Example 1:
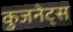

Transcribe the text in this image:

कुजनेट्स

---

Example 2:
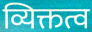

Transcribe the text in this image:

व्यिक्तत्व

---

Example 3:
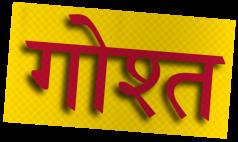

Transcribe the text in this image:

गोश्‍त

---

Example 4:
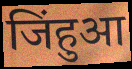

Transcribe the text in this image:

जिंहुआ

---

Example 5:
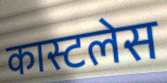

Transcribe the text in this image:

कास्टलेस